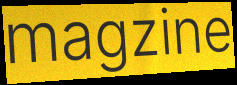
magzine